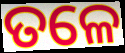
ତଳେ